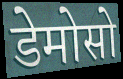
डेमोसो